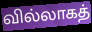
வில்லாகத்